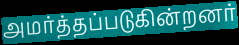
அமர்த்தப்படுகின்றனர்